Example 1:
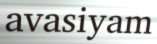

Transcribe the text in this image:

avasiyam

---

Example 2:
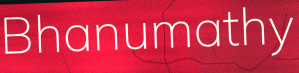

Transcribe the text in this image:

Bhanumathy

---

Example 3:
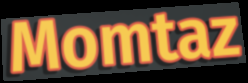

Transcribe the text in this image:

Momtaz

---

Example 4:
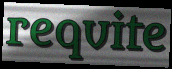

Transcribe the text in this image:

requite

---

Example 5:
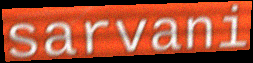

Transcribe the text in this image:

sarvani